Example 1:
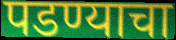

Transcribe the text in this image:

पडण्याचा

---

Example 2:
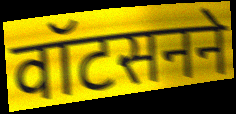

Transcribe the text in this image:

वॉटसनने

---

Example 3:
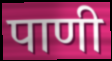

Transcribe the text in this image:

पाणी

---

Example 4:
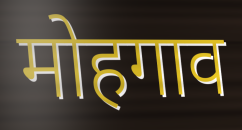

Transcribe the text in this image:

मोहगाव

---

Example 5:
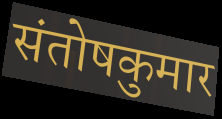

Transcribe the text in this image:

संतोषकुमार